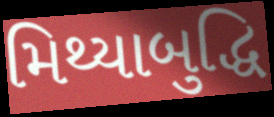
મિથ્યાબુદ્ધિ